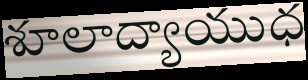
శూలాద్యాయుధ